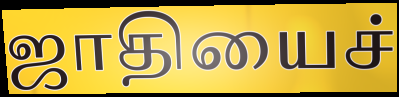
ஜாதியைச்